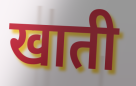
खाती